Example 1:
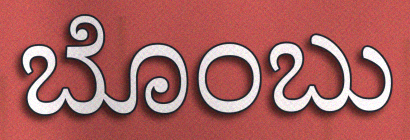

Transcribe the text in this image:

ಬೊಂಬು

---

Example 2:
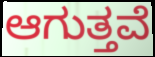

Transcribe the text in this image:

ಆಗುತ್ತವೆ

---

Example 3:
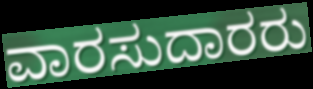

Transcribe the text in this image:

ವಾರಸುದಾರರು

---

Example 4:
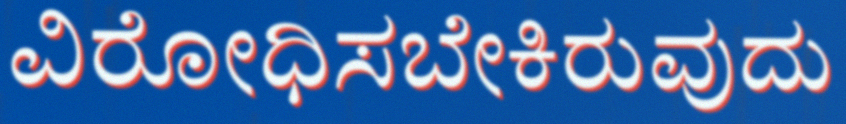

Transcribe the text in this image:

ವಿರೋಧಿಸಬೇಕಿರುವುದು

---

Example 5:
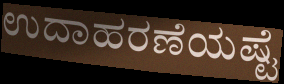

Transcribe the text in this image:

ಉದಾಹರಣೆಯಷ್ಟೆ